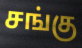
சங்கு